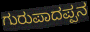
ಗುರುಪಾದಪ್ಪನ